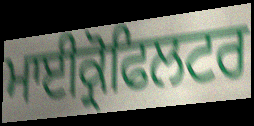
ਮਾਈਕ੍ਰੋਫਿਲਟਰ